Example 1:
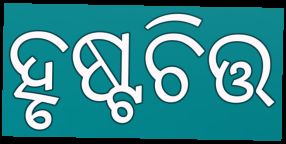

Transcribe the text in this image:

ହୃଷ୍ଟଚିତ୍ତ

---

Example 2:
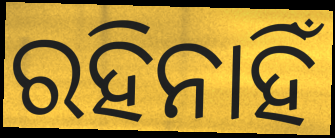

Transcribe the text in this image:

ରହିନାହିଁ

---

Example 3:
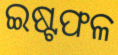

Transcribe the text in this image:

ଇଷ୍ଟଫଳ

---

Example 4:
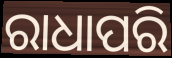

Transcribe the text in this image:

ରାଧାପରି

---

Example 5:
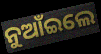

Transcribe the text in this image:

ନୁଆଁଇଲେ